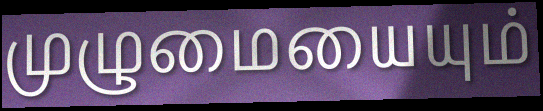
முழுமையையும்